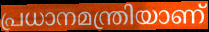
പ്രധാനമന്ത്രിയാണ്